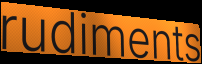
rudiments